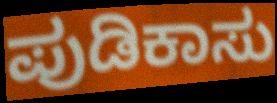
ಪುಡಿಕಾಸು